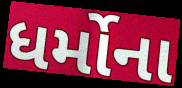
ધર્મોના